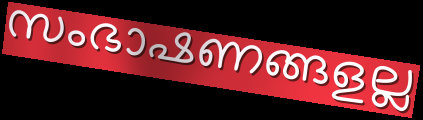
സംഭാഷണങ്ങളല്ല